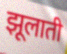
झूलाती